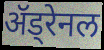
ॲड्रेनल